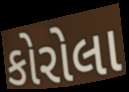
કોરોલા